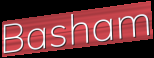
Basham